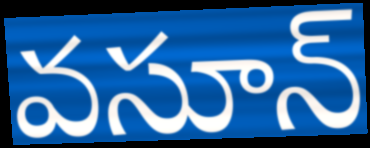
వసూన్